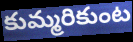
కుమ్మరికుంట